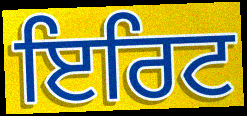
ਇਰਿਟ